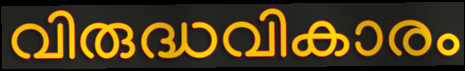
വിരുദ്ധവികാരം